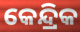
କେନ୍ଦ୍ରିକ